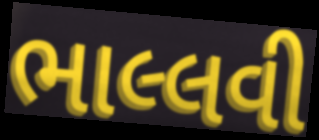
ભાલ્લવી